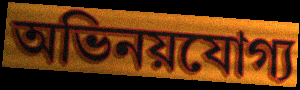
অভিনয়যোগ্য